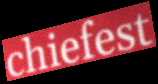
chiefest